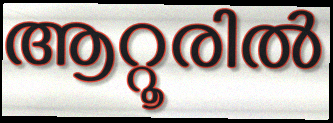
ആറ്റൂരിൽ